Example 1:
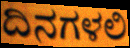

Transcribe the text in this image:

ದಿನಗಳಲಿ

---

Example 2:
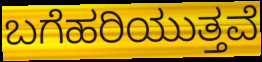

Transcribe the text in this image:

ಬಗೆಹರಿಯುತ್ತವೆ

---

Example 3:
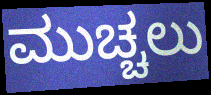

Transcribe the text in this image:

ಮುಚ್ಚಲು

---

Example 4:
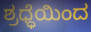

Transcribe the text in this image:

ಶ್ರಧ್ಧೆಯಿಂದ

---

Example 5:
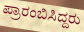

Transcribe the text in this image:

ಪ್ರಾರಂಬಿಸಿದ್ದರು